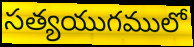
సత్యయుగములో